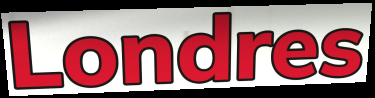
Londres